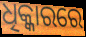
ଧିକ୍କାରରେ